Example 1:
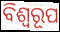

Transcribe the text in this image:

ବିଶ୍ବରୂପ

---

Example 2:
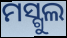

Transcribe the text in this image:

ମସ୍ଗୁଲ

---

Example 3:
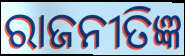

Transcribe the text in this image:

ରାଜନୀତିଜ୍ଞ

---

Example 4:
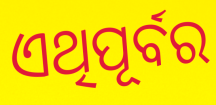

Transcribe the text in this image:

ଏଥିପୂର୍ବର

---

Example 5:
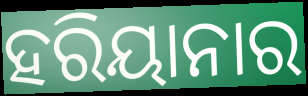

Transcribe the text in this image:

ହରିୟାନାର